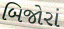
બિજોરાં